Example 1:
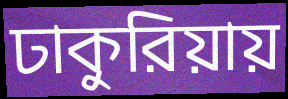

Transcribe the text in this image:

ঢাকুরিয়ায়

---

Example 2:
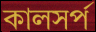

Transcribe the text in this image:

কালসর্প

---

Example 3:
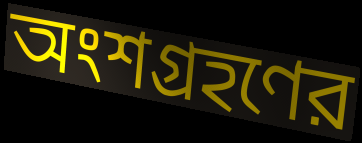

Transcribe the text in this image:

অংশগ্রহণের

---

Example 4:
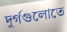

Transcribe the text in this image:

দুর্গগুলোতে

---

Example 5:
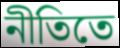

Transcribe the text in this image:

নীতিতে